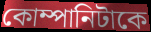
কোম্পানিটাকে